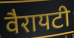
वैरायटी